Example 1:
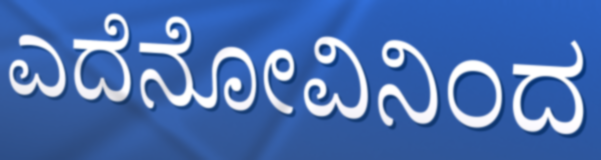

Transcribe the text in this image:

ಎದೆನೋವಿನಿಂದ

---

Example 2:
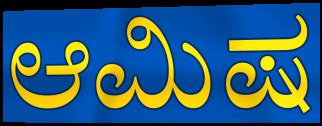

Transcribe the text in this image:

ಆಮಿಷ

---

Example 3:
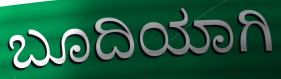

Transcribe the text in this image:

ಬೂದಿಯಾಗಿ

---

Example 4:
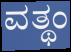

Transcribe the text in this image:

ವತ್ಥಂ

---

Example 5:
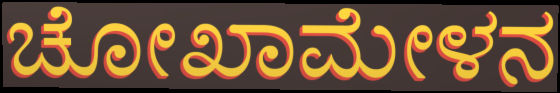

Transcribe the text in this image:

ಚೋಖಾಮೇಳನ